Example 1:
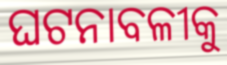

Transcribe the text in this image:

ଘଟନାବଳୀକୁ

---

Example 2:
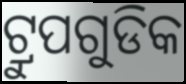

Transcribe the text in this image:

ଟ୍ରୁପଗୁଡିକ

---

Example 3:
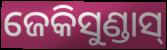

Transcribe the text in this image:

ଜେକିସୁଣ୍ଡାସ୍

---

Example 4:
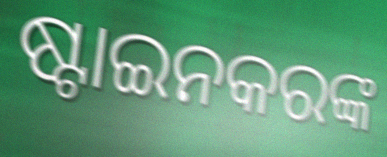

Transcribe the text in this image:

ଷ୍ଟାଇନକରଙ୍କ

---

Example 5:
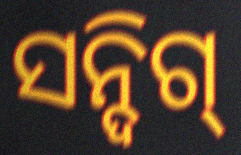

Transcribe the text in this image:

ସନ୍ଦିଗ୍